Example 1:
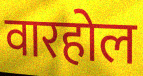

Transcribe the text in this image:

वारहोल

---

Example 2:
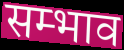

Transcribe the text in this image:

सम्भाव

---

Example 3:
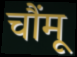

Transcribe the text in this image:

चौंमू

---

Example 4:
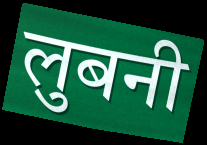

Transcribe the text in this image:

लुबनी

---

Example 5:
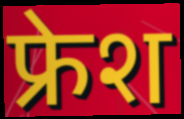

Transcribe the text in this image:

फ्रेश